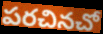
పరచినచో